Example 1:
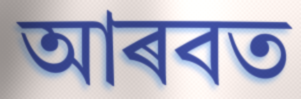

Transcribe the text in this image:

আৰবত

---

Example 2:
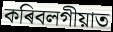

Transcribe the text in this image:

কৰিবলগীয়াত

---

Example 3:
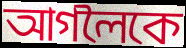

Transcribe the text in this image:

আগলৈকে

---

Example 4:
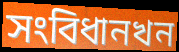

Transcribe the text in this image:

সংবিধানখন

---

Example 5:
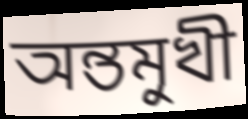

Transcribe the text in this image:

অন্তমুখী